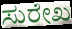
ಸುರೇಖ